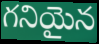
గనియైన